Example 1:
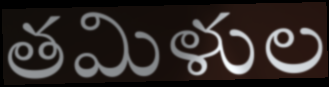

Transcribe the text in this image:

తమిళుల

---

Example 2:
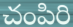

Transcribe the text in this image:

చంపిరి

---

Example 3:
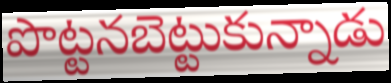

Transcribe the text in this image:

పొట్టనబెట్టుకున్నాడు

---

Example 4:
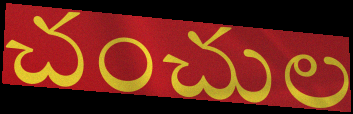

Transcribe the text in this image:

చంచుల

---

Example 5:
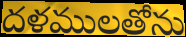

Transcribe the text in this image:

దళములతోను